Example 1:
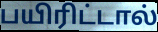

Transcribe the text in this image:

பயிரிட்டால்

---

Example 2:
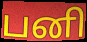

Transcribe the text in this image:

பனி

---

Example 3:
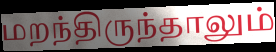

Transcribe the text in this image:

மறந்திருந்தாலும்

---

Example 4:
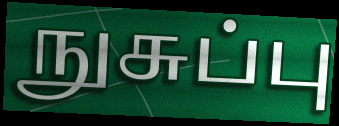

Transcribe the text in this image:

நுசுப்பு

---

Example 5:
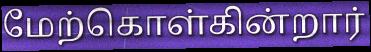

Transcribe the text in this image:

மேற்கொள்கின்றார்